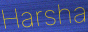
Harsha